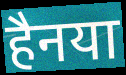
हैनया